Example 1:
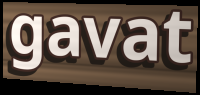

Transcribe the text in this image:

gavat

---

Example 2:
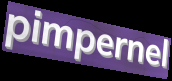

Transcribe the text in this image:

pimpernel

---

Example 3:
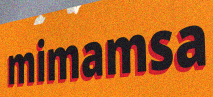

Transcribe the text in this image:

mimamsa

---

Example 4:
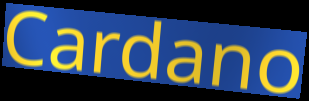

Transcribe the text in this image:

Cardano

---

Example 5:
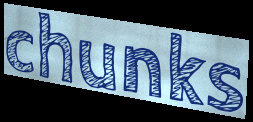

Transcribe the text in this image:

chunks